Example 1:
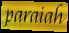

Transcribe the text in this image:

paraiah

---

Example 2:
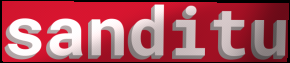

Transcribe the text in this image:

sanditu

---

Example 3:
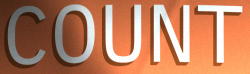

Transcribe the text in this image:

COUNT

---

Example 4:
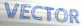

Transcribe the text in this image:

VECTOR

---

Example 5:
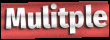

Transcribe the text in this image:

Mulitple